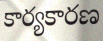
కార్యకారణ